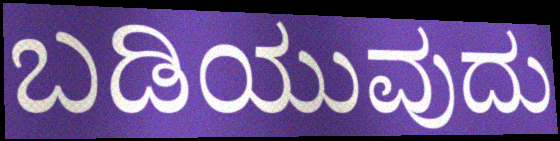
ಬಡಿಯುವುದು